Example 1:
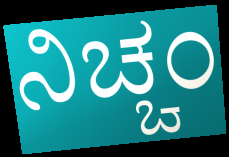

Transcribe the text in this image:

ನಿಚ್ಚಂ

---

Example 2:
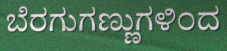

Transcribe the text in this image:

ಬೆರಗುಗಣ್ಣುಗಳಿಂದ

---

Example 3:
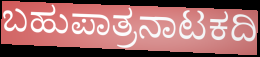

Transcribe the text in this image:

ಬಹುಪಾತ್ರನಾಟಕದಿ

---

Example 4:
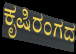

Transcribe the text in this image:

ಕೃಷಿರಂಗದ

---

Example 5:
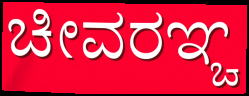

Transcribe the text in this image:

ಚೀವರಞ್ಚ